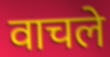
वाचले